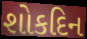
શોકદિન